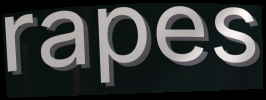
rapes